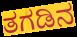
ತಗಡಿನ